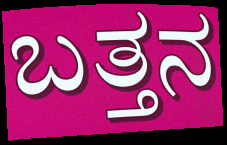
ಬತ್ತನ